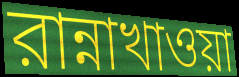
রান্নাখাওয়া